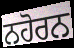
ਨਹੋਰਨ